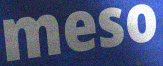
meso